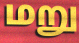
மறு